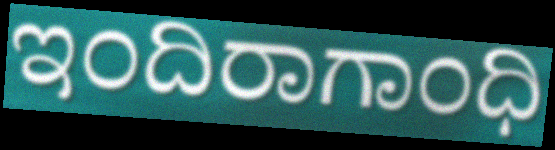
ಇಂದಿರಾಗಾಂಧಿ